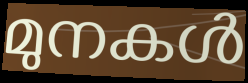
മുനകൾ